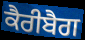
ਕੈਰੀਬੈਗ